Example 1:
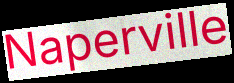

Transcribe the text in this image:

Naperville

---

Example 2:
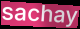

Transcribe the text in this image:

sachay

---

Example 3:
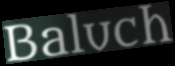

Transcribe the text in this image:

Baluch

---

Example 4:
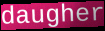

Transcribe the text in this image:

daugher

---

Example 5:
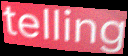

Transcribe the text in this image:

telling